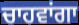
ਚਾਹਵਾਂਗਾ